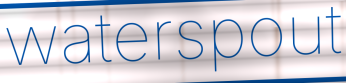
waterspout